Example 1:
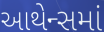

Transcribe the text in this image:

આથેન્સમાં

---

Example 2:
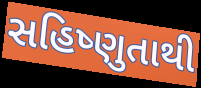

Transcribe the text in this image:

સહિષ્ણુતાથી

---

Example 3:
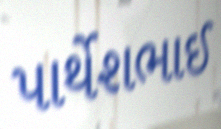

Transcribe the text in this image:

પાર્થેશભાઈ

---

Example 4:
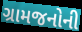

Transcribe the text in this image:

ગ્રામજનોની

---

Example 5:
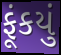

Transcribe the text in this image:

ફૂંકયું